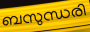
ബസുന്ധരി